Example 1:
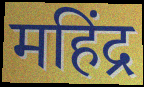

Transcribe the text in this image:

महिंद्र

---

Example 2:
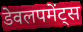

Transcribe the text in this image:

डेवलपमेंट्स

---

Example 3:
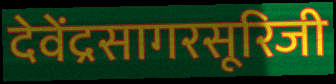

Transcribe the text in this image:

देवेंद्रसागरसूरिजी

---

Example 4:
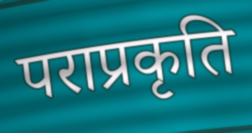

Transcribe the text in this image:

पराप्रकृति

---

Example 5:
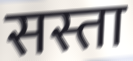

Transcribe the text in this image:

सस्‍ता